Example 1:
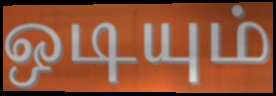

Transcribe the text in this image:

ஒடியும்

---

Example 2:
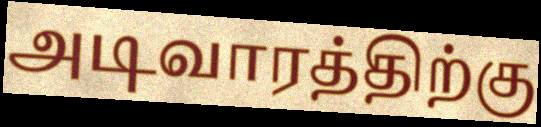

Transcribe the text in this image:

அடிவாரத்திற்கு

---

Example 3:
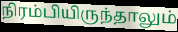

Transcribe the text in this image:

நிரம்பியிருந்தாலும்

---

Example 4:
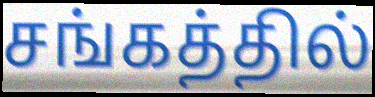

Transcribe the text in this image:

சங்கத்தில்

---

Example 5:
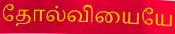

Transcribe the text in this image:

தோல்வியையே